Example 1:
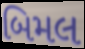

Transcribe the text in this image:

બિમલ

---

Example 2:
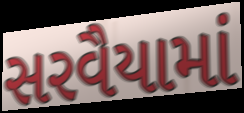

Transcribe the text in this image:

સરવૈયામાં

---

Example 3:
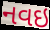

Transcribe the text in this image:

નવઇ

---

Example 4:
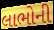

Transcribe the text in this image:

લાભોની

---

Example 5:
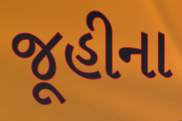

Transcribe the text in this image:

જૂહીના